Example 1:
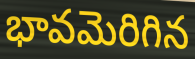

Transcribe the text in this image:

భావమెరిగిన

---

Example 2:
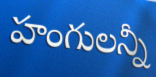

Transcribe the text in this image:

హంగులన్నీ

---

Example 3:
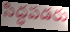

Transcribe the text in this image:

సిద్ధపడరు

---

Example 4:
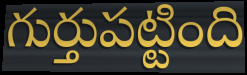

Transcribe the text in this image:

గుర్తుపట్టింది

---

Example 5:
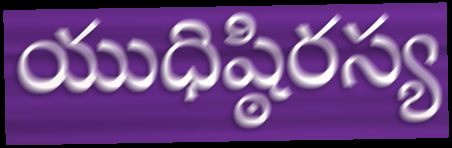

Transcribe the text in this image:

యుధిష్ఠిరస్య